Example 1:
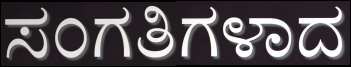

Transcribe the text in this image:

ಸಂಗತಿಗಳಾದ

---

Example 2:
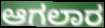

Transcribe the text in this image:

ಆಗಲಾರ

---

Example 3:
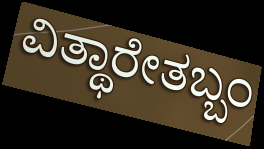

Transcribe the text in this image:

ವಿತ್ಥಾರೇತಬ್ಬಂ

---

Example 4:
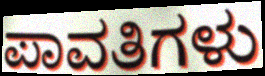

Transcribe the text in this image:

ಪಾವತಿಗಳು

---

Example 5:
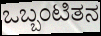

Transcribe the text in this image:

ಒಬ್ಬಂಟಿತನ